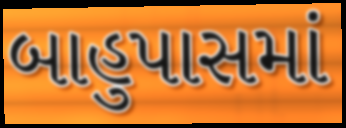
બાહુપાસમાં